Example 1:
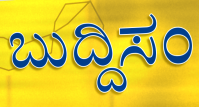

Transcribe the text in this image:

ಬುದ್ದಿಸಂ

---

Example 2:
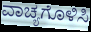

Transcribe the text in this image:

ವಾಚ್ಯಗೊಳಿಸಿ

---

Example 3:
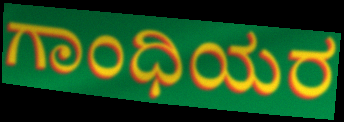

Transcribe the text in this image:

ಗಾಂಧಿಯರ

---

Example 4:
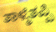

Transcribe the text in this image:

ತಾಳ್ಮೆತಪ್ಪಿ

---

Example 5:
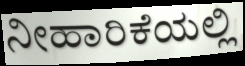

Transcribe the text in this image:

ನೀಹಾರಿಕೆಯಲ್ಲಿ